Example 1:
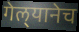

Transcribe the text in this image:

गेल्यानेच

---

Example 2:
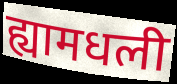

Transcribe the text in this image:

ह्यामधली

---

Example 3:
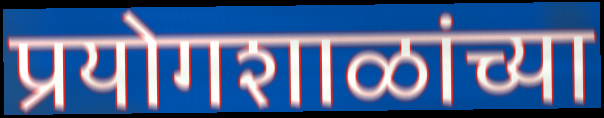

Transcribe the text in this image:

प्रयोगशाळांच्या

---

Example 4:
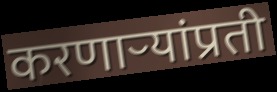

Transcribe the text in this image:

करणाऱ्यांप्रती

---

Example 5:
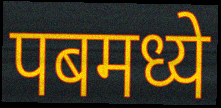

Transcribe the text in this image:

पबमध्ये